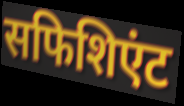
सफिशिएंट